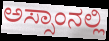
ಅಸ್ಸಾಂನಲ್ಲಿ